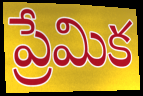
ప్రేమిక